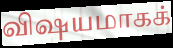
விஷயமாகக்